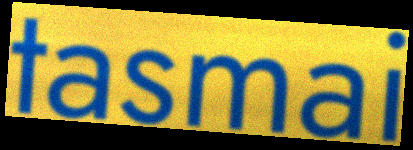
tasmai